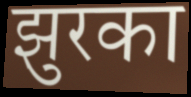
झुरका